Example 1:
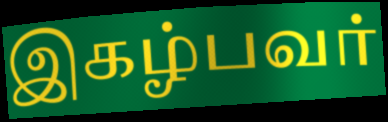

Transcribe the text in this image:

இகழ்பவர்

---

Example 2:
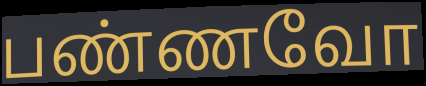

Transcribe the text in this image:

பண்ணவோ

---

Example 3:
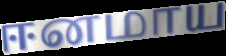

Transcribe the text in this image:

ஈனமாய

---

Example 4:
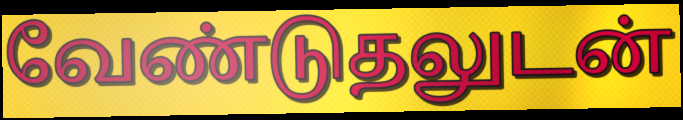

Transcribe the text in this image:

வேண்டுதலுடன்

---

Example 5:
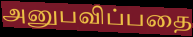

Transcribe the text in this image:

அனுபவிப்பதை